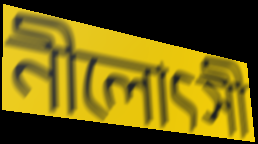
নীলোৎসী